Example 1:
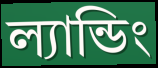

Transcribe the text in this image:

ল্যান্ডিং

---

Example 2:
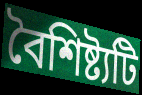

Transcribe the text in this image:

বৈশিষ্ট্যটি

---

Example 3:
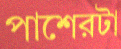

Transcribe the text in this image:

পাশেরটা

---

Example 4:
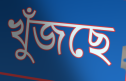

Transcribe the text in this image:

খুঁজছে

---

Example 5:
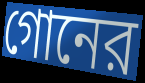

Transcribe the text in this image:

গোনের